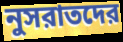
নুসরাতদের